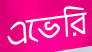
এভেরি